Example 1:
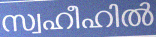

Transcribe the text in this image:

സ്വഹീഹിൽ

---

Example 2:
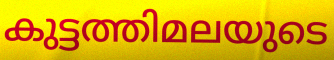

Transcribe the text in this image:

കുട്ടത്തിമലയുടെ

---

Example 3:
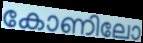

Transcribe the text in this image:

കോണിലോ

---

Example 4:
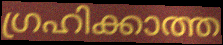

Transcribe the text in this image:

ഗ്രഹിക്കാത്ത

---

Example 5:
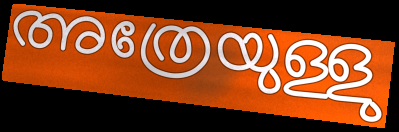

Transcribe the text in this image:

അത്രേയുള്ളു